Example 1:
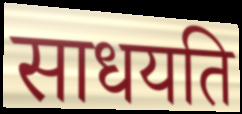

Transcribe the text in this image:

साधयति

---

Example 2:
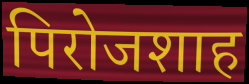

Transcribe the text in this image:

पिरोजशाह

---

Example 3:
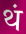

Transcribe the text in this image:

थं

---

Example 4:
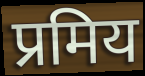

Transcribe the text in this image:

प्रमिय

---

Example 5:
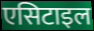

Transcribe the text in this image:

एसिटाइल